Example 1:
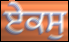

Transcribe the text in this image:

ਏਕਸੁ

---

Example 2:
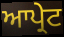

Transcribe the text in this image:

ਆਪ੍ਰੇਟ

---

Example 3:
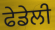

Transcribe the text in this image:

ਫੇਡੇਲੀ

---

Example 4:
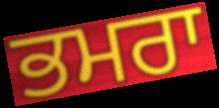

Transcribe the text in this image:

ਭਮਰਾ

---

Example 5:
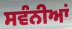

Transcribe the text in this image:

ਸਵੰਨੀਆਂ